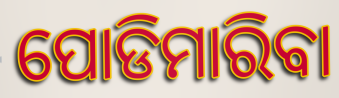
ପୋଡିମାରିବା